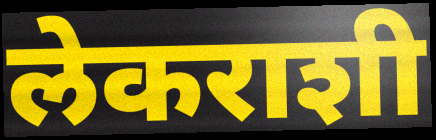
लेकराशी